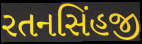
રતનસિંહજી